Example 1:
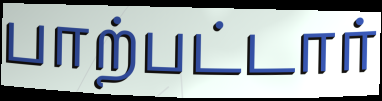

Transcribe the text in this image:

பாற்பட்டார்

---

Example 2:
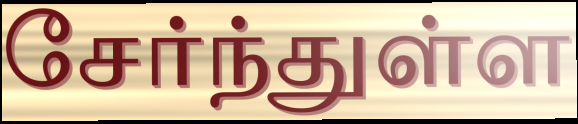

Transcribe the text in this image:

சேர்ந்துள்ள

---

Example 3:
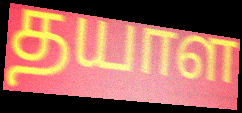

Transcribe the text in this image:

தயாள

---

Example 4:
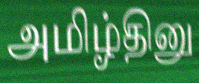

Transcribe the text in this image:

அமிழ்தினு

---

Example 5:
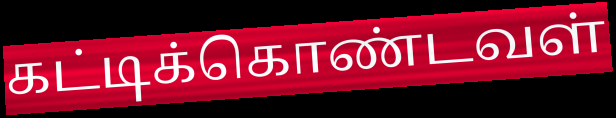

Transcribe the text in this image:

கட்டிக்கொண்டவள்